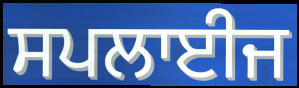
ਸਪਲਾਈਜ